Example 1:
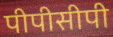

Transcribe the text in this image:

पीपीसीपी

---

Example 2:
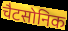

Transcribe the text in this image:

चैटसोनिक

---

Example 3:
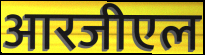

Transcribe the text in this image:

आरजीएल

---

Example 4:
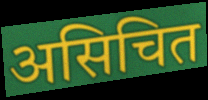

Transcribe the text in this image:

असिचित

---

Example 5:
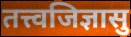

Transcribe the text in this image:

तत्त्वजिज्ञासु